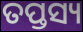
ତପ୍ତସ୍ୟ